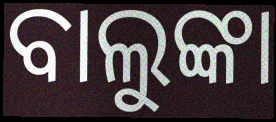
ବାଲୁଙ୍କା